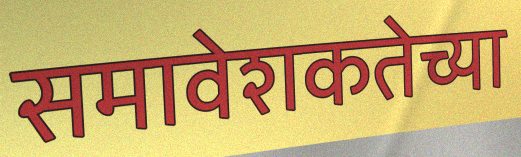
समावेशकतेच्या